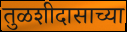
तुळशीदासाच्या